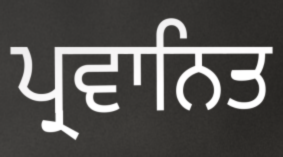
ਪ੍ਰਵਾਨਿਤ